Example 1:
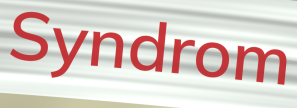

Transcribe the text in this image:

Syndrom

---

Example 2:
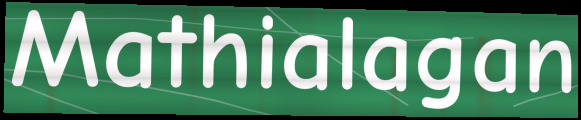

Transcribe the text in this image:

Mathialagan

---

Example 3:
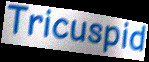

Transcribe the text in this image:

Tricuspid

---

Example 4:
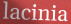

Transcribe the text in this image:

lacinia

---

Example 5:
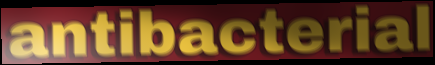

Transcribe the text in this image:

antibacterial